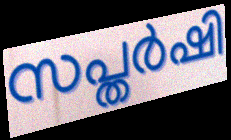
സപ്തർഷി